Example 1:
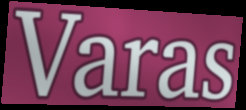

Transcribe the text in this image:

Varas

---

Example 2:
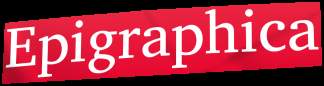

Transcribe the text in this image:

Epigraphica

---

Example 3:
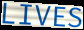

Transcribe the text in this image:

LIVES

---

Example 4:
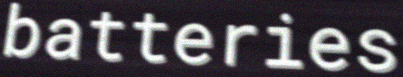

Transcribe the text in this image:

batteries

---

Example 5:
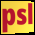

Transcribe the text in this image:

psl